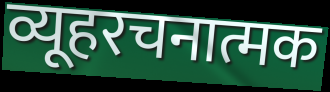
व्यूहरचनात्मक